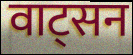
वाट्सन